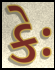
કેઃ